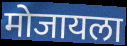
मोजायला